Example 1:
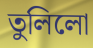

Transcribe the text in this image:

তুলিলো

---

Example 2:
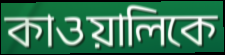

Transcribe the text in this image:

কাওয়ালিকে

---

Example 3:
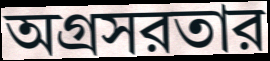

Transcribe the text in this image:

অগ্রসরতার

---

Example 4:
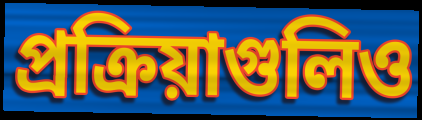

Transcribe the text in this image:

প্রক্রিয়াগুলিও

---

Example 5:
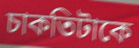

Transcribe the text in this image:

চাকতিটাকে